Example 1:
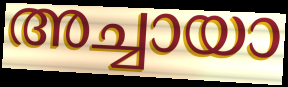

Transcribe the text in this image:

അച്ചായാ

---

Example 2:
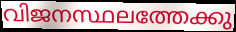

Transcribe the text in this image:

വിജനസ്ഥലത്തേക്കു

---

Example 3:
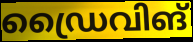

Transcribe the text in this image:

ഡ്രൈവിങ്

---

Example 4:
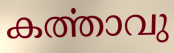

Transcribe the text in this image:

കൎത്താവു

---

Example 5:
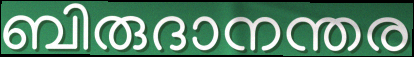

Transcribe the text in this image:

ബിരുദാനന്തര